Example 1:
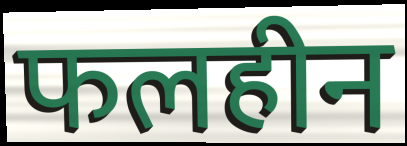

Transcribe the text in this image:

फलहीन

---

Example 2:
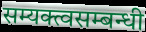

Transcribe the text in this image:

सम्यक्त्वसम्बन्धी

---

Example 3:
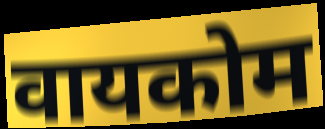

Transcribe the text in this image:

वायकोम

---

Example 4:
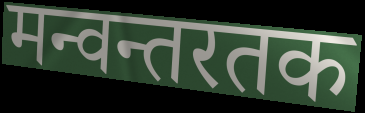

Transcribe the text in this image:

मन्वन्तरतक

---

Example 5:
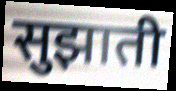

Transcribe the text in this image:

सुझाती